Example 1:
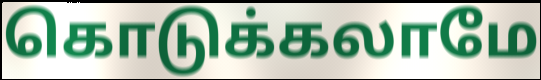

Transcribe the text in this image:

கொடுக்கலாமே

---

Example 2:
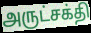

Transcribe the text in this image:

அருட்சக்தி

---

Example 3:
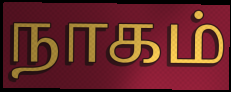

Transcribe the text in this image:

நாகம்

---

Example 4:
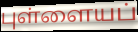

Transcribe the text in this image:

புள்ளையப்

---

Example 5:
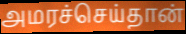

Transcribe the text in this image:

அமரச்செய்தான்